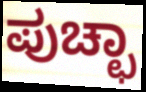
ಪುಚ್ಛಾ